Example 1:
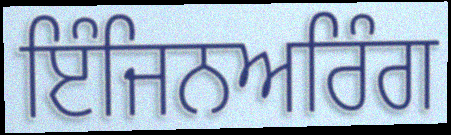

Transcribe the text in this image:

ਇੰਜਿਨਅਰਿੰਗ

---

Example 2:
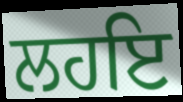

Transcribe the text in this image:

ਲਹਇ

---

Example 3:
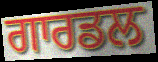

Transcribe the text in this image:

ਗਾਰਡਲ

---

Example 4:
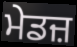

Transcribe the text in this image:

ਮੇਡਜ਼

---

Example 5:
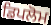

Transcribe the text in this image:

ਡਿਪਲੋਮ